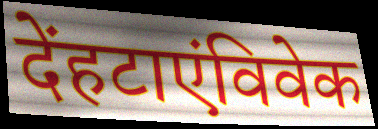
देंहटाएंविवेक